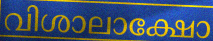
വിശാലാക്ഷോ